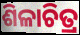
ଶିଳାଚିତ୍ର